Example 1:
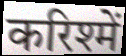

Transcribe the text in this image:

करिश्में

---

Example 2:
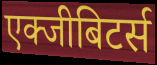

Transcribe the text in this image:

एक्जीबिटर्स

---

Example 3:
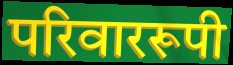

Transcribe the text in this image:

परिवाररूपी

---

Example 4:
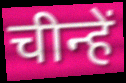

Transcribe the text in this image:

चीन्हें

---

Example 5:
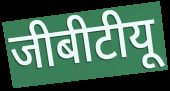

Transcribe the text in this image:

जीबीटीयू